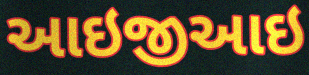
આઇજીઆઇ